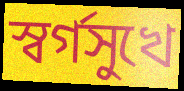
স্বর্গসুখে